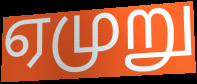
ஏமுறு